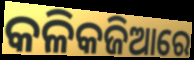
କଳିକଜିଆରେ